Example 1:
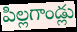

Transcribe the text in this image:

పిల్లగాండ్లు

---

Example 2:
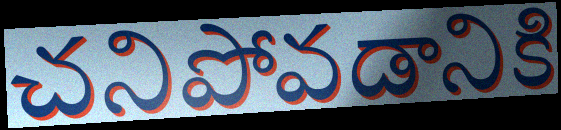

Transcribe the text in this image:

చనిపోవడానికి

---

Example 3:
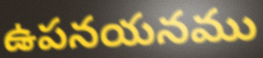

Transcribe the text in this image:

ఉపనయనము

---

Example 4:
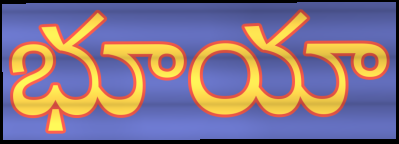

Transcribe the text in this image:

భూయా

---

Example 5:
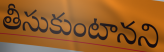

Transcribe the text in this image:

తీసుకుంటానని